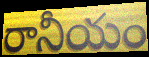
రానీయం